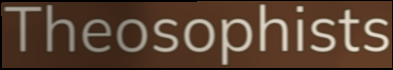
Theosophists